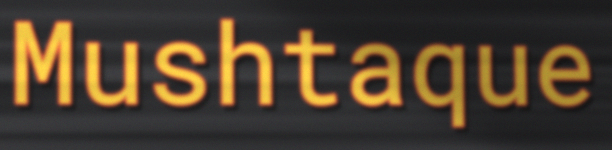
Mushtaque